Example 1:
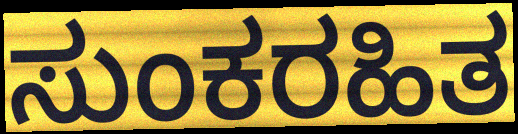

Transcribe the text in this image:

ಸುಂಕರಹಿತ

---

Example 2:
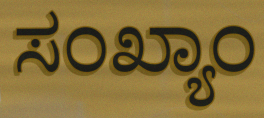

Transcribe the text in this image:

ಸಂಖ್ಯಾಂ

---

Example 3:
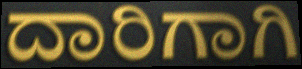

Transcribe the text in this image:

ದಾರಿಗಾಗಿ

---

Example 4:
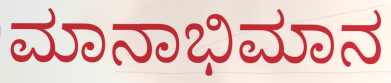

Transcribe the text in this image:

ಮಾನಾಭಿಮಾನ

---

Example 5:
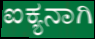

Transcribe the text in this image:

ಐಕ್ಯನಾಗಿ